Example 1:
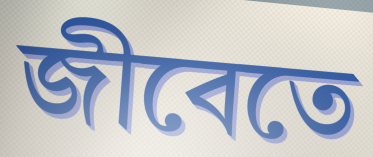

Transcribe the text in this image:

জীবেতে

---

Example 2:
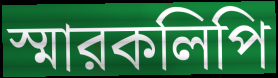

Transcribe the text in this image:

স্মারকলিপি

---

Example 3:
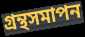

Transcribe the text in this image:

গ্রন্থসমাপন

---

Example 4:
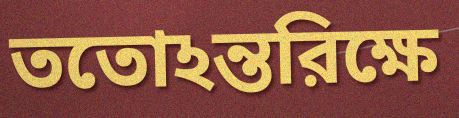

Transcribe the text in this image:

ততোঽন্তরিক্ষে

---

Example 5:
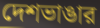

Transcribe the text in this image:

দেশভাঙার